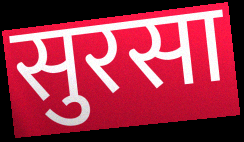
सुरसा